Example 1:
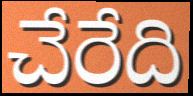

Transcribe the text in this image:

చేరేది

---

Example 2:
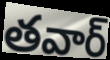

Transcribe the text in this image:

తవార్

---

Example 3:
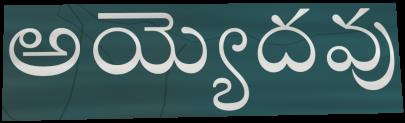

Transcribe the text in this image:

అయ్యెదవు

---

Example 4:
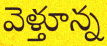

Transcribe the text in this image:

వెళ్తూన్న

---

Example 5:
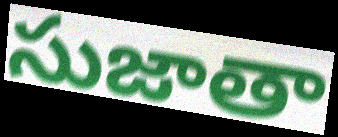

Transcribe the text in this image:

సుజాతా